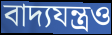
বাদ্যযন্ত্রও